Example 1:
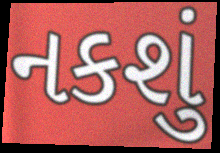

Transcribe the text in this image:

નકશું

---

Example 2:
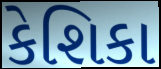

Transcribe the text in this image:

કેશિકા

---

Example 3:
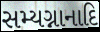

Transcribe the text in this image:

સમ્યગ્નાનાદિ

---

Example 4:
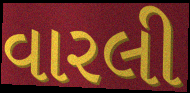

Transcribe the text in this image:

વારલી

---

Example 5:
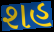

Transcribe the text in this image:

શહ